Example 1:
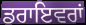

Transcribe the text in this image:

ਡਰਾਇਵਰਾਂ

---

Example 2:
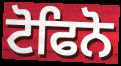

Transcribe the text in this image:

ਟੋਫਿਨੋ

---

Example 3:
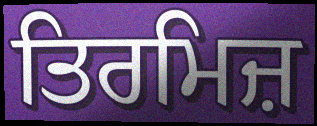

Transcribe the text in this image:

ਤਿਰਮਿਜ਼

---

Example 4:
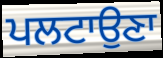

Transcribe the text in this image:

ਪਲਟਾਉਣਾ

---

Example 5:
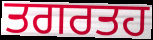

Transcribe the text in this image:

ਤਗਰਤਹ